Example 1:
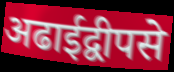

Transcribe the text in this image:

अढाईद्वीपसे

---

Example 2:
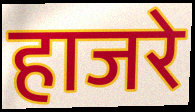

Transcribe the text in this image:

हाजरे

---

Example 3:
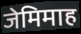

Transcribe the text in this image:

जेमिमाह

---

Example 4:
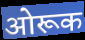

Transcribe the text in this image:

ओरूक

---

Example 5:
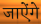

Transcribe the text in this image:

जाऐंगे